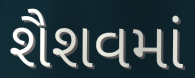
શૈશવમાં